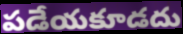
పడేయకూడదు